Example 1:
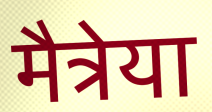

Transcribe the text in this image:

मैत्रेया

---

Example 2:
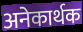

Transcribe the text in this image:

अनेकार्थक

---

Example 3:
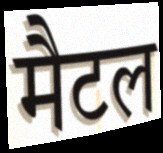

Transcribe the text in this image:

मैटल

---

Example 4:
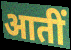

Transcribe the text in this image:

आतीं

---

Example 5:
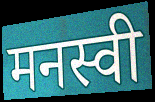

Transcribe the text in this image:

मनस्वी